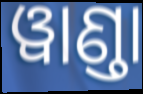
ୱାଣ୍ଡା